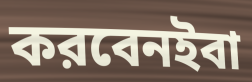
করবেনইবা